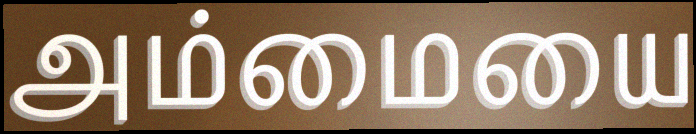
அம்மையை